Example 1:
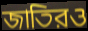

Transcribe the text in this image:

জাতিরও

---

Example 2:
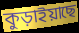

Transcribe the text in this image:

কুড়াইয়াছে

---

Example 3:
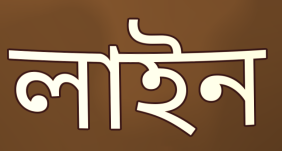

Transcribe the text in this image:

লাইন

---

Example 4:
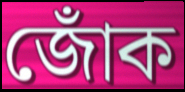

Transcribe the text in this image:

জোঁক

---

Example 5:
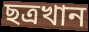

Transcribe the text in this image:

ছত্রখান